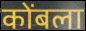
कोंबला